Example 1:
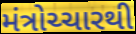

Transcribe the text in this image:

મંત્રોચ્ચારથી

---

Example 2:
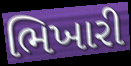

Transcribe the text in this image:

ભિખારી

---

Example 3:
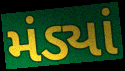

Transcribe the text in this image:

મંડ્યાં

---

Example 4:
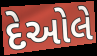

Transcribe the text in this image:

દેઓલે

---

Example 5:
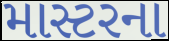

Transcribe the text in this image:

માસ્ટરના